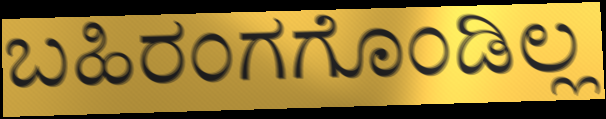
ಬಹಿರಂಗಗೊಂಡಿಲ್ಲ